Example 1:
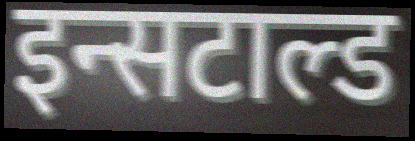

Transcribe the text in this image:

इन्सटाल्ड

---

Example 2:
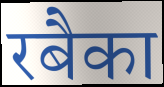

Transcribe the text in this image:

रबैका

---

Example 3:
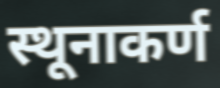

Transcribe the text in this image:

स्थूनाकर्ण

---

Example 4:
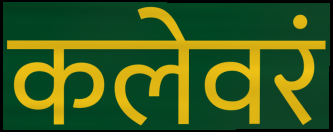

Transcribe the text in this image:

कलेवरं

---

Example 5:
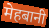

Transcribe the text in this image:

मेहबानी